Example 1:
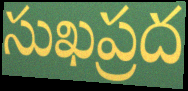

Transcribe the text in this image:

సుఖప్రద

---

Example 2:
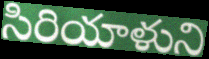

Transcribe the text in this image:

సిరియాళుని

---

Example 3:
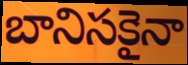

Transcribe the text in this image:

బానిసకైనా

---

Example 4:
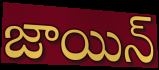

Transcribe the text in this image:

జాయిన్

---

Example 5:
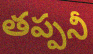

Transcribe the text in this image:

తప్పనీ